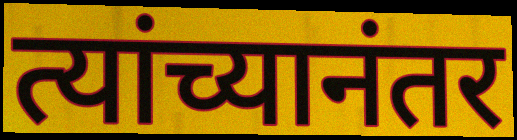
त्यांच्यानंतर